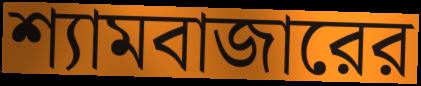
শ্যামবাজারের